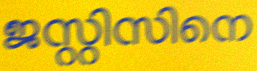
ജസ്റ്റിസിനെ